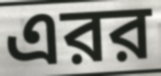
এরর